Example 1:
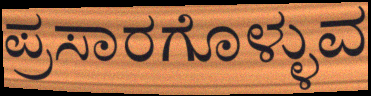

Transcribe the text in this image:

ಪ್ರಸಾರಗೊಳ್ಳುವ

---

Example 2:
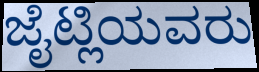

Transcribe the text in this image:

ಜೈಟ್ಲಿಯವರು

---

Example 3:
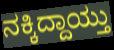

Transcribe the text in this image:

ನಕ್ಕಿದ್ದಾಯ್ತು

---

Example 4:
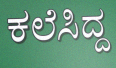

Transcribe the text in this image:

ಕಲೆಸಿದ್ದ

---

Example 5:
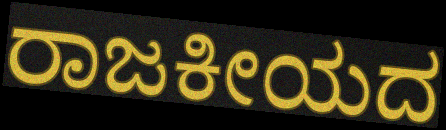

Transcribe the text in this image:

ರಾಜಕೀಯದ